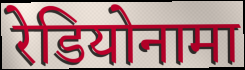
रेडियोनामा